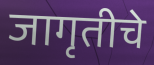
जागृतीचे